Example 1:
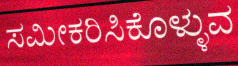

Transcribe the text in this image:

ಸಮೀಕರಿಸಿಕೊಳ್ಳುವ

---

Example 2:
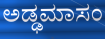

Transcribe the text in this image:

ಅಡ್ಢಮಾಸಂ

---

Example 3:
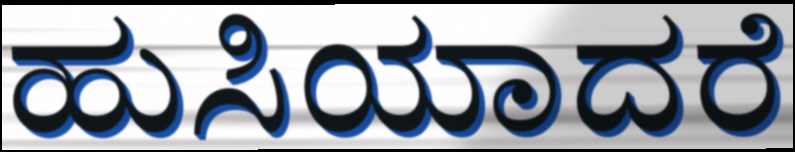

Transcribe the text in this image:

ಹುಸಿಯಾದರೆ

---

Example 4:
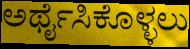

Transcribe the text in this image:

ಅರ್ಥೈಸಿಕೊಳ್ಳಲು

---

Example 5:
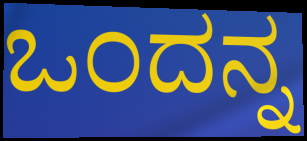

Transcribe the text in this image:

ಒಂದನ್ನ